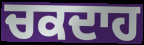
ਚਕਦਾਹ